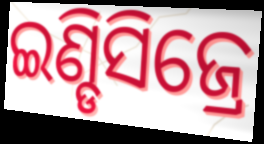
ଇଣ୍ଡିସିଜ୍ରେ